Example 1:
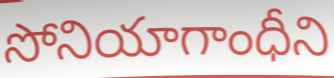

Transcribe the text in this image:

సోనియాగాంధీని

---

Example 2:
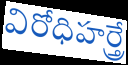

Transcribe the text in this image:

విరోధిహర్త్రే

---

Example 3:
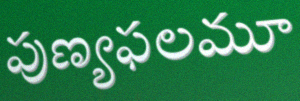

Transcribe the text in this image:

పుణ్యఫలమూ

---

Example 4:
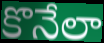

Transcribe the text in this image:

కొనేలా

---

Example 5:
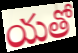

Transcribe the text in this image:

యతో